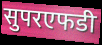
सुपरएफडी